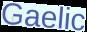
Gaelic